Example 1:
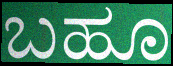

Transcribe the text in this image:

ಬಹೂ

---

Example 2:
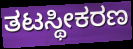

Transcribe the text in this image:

ತಟಸ್ಥೀಕರಣ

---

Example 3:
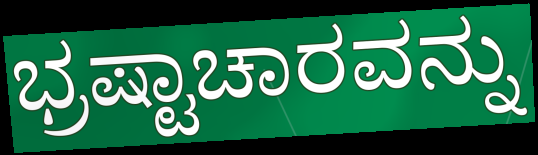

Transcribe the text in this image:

ಭ್ರಷ್ಟಾಚಾರವನ್ನು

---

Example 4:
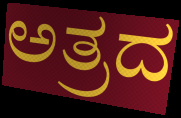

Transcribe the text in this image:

ಅತ್ರದ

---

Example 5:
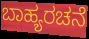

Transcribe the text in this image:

ಬಾಹ್ಯರಚನೆ